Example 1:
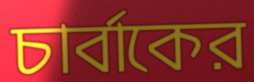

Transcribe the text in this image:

চার্বাকের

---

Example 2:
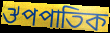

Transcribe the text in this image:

ঔপপাতিক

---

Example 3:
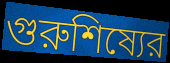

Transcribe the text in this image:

গুরুশিষ্যের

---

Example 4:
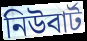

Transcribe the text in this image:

নিউবার্ট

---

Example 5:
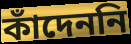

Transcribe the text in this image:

কাঁদেননি